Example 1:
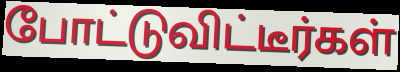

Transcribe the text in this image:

போட்டுவிட்டீர்கள்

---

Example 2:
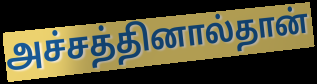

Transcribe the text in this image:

அச்சத்தினால்தான்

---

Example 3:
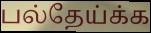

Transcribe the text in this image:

பல்தேய்க்க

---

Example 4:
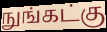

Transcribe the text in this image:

நுங்கட்கு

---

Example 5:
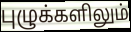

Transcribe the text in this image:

புழுக்களிலும்